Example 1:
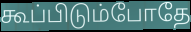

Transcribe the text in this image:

கூப்பிடும்போதே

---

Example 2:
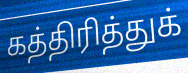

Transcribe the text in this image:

கத்திரித்துக்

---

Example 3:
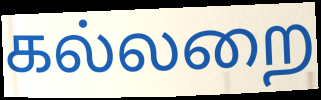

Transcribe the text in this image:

கல்லறை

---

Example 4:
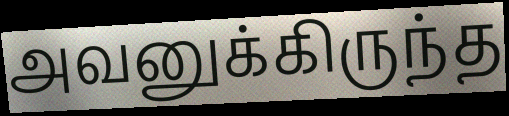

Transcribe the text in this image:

அவனுக்கிருந்த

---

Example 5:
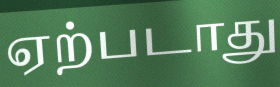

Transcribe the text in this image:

ஏற்படாது